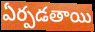
ఏర్పడతాయి